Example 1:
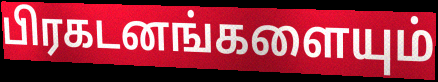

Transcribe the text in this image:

பிரகடனங்களையும்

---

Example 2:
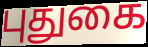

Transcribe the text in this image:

புதுகை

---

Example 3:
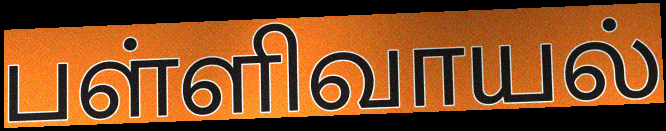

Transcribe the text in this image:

பள்ளிவாயல்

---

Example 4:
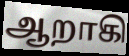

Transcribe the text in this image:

ஆறாகி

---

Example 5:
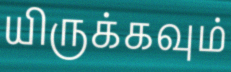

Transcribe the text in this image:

யிருக்கவும்